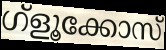
ഗ്ളൂക്കോസ്